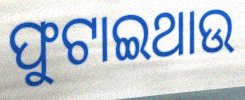
ଫୁଟାଇଥାଉ